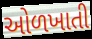
ઓળખાતી